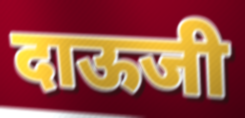
दाऊजी